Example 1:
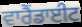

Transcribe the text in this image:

ਵਾਰੈਂਡਾਈਟ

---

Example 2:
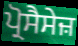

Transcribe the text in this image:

ਪ੍ਰੋਸੈਸੇਜ਼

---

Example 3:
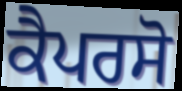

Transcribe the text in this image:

ਕੈਪਰਸੋ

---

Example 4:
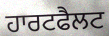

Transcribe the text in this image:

ਹਾਰਟਫੈਲਟ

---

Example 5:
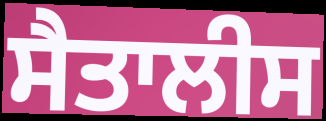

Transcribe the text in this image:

ਸੈਤਾਲੀਸ